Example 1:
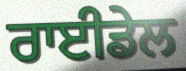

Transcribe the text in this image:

ਰਾਈਡੇਲ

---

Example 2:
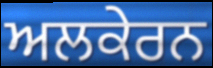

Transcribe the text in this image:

ਅਲਕੇਰਨ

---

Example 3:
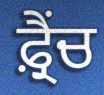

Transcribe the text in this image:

ਫ਼੍ਰੈਂਚ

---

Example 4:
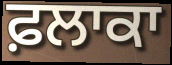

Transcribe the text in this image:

ਫ਼ਲਾਕਾ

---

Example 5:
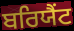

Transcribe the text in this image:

ਬਰਿਯੈਂਟ